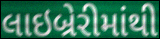
લાઇબ્રેરીમાંથી